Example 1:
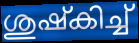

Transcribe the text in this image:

ശുഷ്കിച്ച്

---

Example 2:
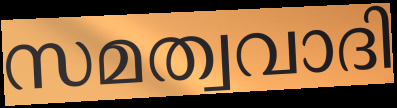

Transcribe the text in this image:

സമത്വവാദി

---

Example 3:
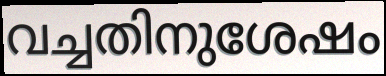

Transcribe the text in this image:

വച്ചതിനുശേഷം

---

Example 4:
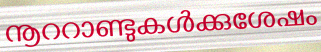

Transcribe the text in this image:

നൂററാണ്ടുകൾക്കുശേഷം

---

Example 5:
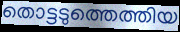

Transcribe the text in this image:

തൊട്ടടുത്തെത്തിയ